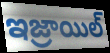
ఇజ్రాయిల్